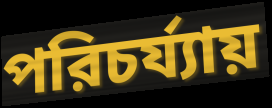
পরিচর্য্যায়